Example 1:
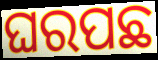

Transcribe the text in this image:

ଘରପଛ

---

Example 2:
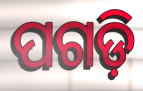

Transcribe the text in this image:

ପଗଡ଼ି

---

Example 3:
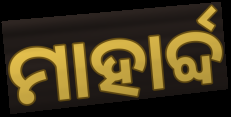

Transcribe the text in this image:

ମାହାର୍ବ୍ଦ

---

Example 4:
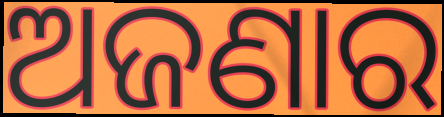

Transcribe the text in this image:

ଅଜଣାର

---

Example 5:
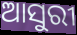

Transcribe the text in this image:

ଆସୁରୀ